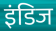
इंडिज